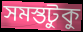
সমস্তটুকু